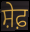
ਸ਼ੇਫ਼